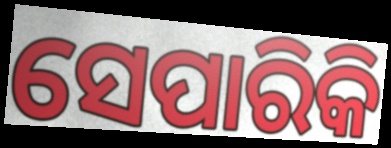
ସେପାରିକି